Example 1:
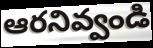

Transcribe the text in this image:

ఆరనివ్వండి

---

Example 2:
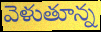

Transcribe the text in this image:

వెళుతూన్న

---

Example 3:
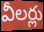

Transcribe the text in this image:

వీలర్లు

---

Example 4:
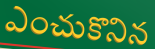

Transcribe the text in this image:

ఎంచుకొనిన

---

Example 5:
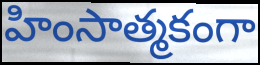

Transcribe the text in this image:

హింసాత్మకంగా